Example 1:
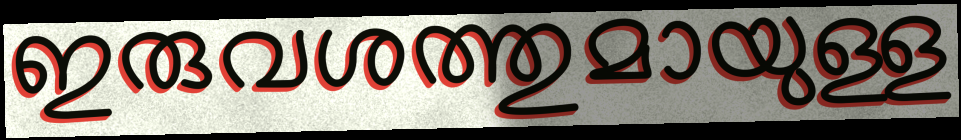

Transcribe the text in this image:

ഇരുവശത്തുമായുള്ള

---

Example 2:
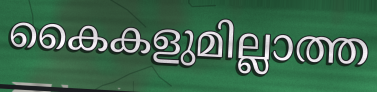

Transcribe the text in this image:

കൈകളുമില്ലാത്ത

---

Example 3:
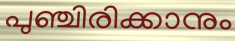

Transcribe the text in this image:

പുഞ്ചിരിക്കാനും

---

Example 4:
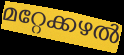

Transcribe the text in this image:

മറ്റേക്കഴൽ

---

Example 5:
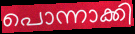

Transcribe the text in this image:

പൊന്നാക്കി